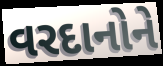
વરદાનોને